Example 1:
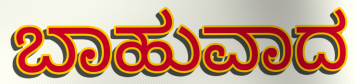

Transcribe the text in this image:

ಬಾಹುವಾದ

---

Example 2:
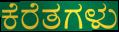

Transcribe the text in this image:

ಕೆರೆತಗಳು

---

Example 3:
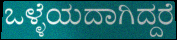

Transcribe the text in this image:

ಒಳ್ಳೆಯದಾಗಿದ್ದರೆ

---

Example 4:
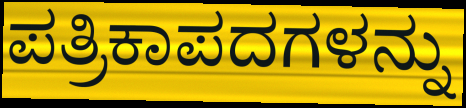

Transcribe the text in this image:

ಪತ್ರಿಕಾಪದಗಳನ್ನು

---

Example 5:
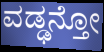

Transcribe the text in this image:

ವಡ್ಢನ್ತೋ